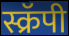
स्क्रॅपी